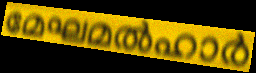
മേഘമൽഹാർ